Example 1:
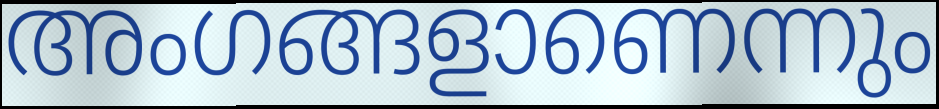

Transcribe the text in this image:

അംഗങ്ങളാണെന്നും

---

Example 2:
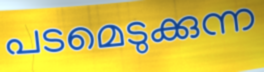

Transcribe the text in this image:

പടമെടുക്കുന്ന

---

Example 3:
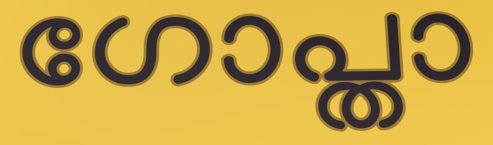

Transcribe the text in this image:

ഗോപ്താ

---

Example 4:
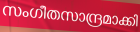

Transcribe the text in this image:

സംഗീതസാന്ദ്രമാക്കി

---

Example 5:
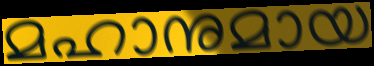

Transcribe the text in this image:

മഹാനുമായ